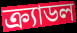
ক্র্যাডল